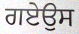
ਗਏਉਸ